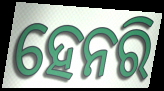
ହେନରି